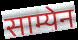
साम्येन